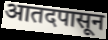
आतदपासून